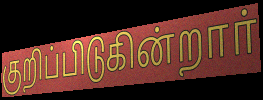
குறிப்பிடுகின்றார்